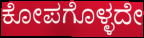
ಕೋಪಗೊಳ್ಳದೇ